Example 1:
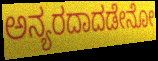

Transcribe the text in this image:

ಅನ್ಯರದಾದಡೇನೋ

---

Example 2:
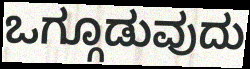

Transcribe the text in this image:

ಒಗ್ಗೂಡುವುದು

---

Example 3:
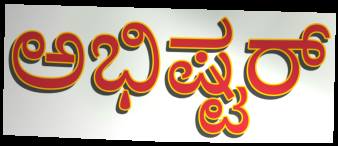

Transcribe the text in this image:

ಅಭಿಷ್ಟರ್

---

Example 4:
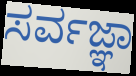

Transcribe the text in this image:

ಸರ್ವಜ್ಞಾ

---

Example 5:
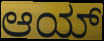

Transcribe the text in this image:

ಆಯ್